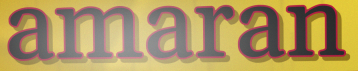
amaran